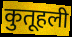
कुतूहली